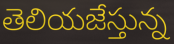
తెలియజేస్తున్న